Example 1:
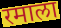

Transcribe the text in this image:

रमाला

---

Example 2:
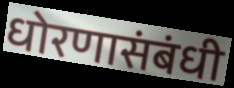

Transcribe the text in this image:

धोरणासंबंधी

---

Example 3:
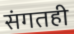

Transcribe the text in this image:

संगतही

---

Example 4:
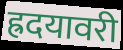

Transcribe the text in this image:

ह्रदयावरी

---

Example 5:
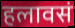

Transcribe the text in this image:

हलावसं